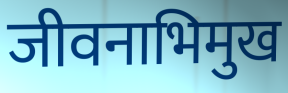
जीवनाभिमुख